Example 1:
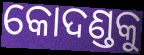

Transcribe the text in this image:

କୋଦଣ୍ଡକୁ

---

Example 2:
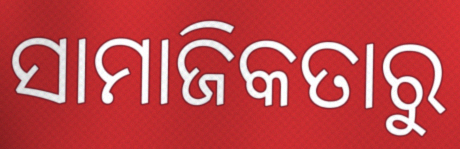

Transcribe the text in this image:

ସାମାଜିକତାରୁ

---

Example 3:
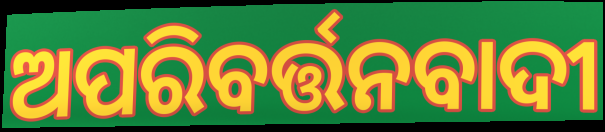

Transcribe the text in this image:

ଅପରିବର୍ତ୍ତନବାଦୀ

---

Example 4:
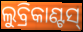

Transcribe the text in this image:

ଲୁବ୍ରିକାଣ୍ଟସ୍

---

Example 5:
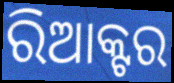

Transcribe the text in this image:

ରିଆକ୍ଟର